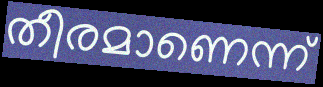
തീരമാണെന്ന്